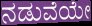
ನಡುವೆಯೇ